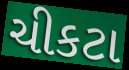
ચીકટા